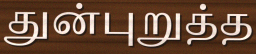
துன்புறுத்த